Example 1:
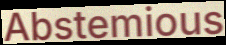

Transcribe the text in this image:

Abstemious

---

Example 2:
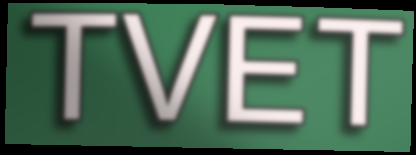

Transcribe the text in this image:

TVET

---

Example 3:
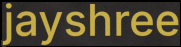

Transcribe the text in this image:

jayshree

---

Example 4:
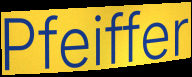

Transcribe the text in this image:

Pfeiffer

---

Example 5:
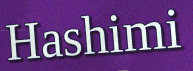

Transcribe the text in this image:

Hashimi